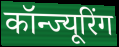
कॉन्ज्यूरिंग